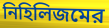
নিহিলিজমের